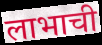
लाभाची